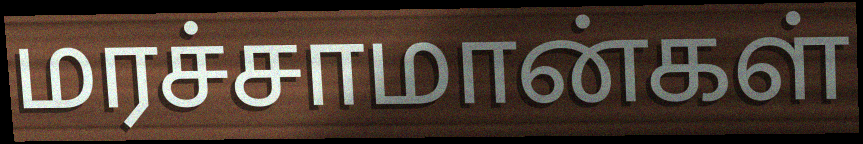
மரச்சாமான்கள்